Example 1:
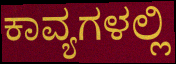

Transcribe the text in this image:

ಕಾವ್ಯಗಳಲ್ಲಿ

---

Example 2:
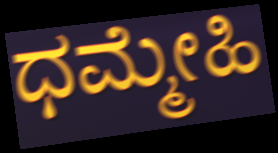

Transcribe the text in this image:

ಧಮ್ಮೇಹಿ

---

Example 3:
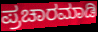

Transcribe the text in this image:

ಪ್ರಚಾರಮಾಡಿ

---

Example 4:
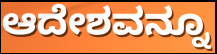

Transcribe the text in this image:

ಆದೇಶವನ್ನೂ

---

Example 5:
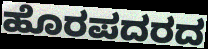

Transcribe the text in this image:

ಹೊರಪದರದ